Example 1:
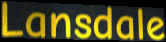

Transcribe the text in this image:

Lansdale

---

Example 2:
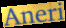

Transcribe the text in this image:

Aneri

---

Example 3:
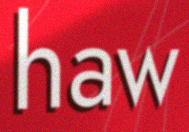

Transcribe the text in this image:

haw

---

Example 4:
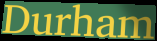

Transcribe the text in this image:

Durham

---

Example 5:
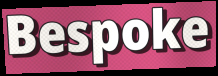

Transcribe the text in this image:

Bespoke